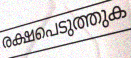
രക്ഷപെടുത്തുക